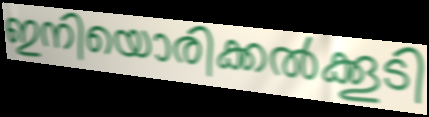
ഇനിയൊരിക്കൽക്കൂടി